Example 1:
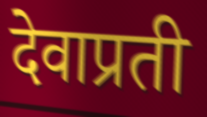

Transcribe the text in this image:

देवाप्रती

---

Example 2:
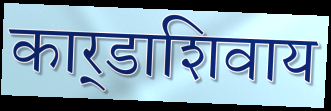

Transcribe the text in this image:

कार्डाशिवाय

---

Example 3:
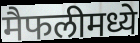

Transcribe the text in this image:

मैफलीमध्ये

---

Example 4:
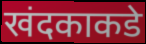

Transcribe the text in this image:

खंदकाकडे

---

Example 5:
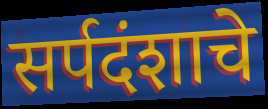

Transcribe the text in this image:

सर्पदंशाचे